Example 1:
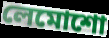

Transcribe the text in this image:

লেমোশো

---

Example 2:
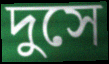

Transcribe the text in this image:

দুসে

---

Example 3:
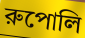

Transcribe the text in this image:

রুপোলি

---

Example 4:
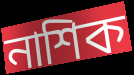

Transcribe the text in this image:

নাশিক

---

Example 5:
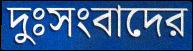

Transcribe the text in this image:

দুঃসংবাদের